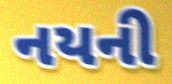
નયની